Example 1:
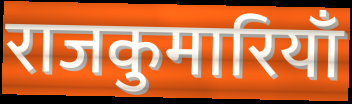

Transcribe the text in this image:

राजकुमारियाँ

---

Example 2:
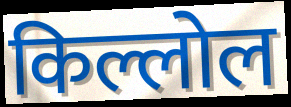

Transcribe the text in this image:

किल्लोल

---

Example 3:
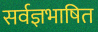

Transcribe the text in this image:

सर्वज्ञभाषित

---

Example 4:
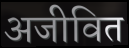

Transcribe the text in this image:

अजीवित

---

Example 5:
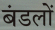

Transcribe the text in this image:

बंडलों